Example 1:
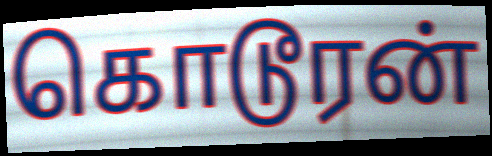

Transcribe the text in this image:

கொடூரன்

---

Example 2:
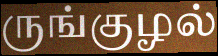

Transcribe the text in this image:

ருங்குழல்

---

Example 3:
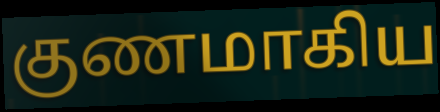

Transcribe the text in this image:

குணமாகிய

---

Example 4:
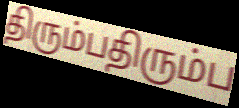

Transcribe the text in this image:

திரும்பதிரும்ப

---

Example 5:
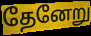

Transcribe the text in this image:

தேனேறு